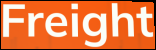
Freight